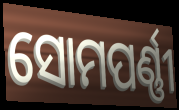
ସୋମପର୍ଣ୍ଣୀ